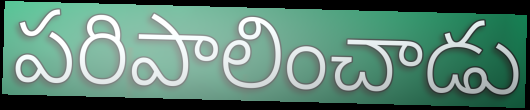
పరిపాలించాడు